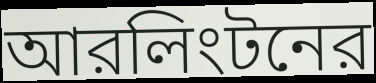
আরলিংটনের